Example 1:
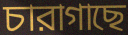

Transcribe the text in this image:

চারাগাছে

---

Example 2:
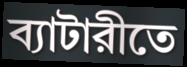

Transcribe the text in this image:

ব্যাটারীতে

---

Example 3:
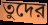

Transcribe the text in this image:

তুদের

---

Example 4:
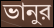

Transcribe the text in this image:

ভানুর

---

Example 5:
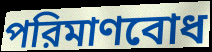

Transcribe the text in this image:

পরিমাণবোধ